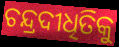
ଚନ୍ଦ୍ରଦୀଧିତିକୁ